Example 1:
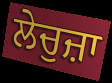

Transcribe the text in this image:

ਲੇਚੁਜ਼ਾ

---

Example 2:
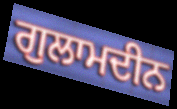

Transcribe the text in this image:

ਗੁਲਾਮਦੀਨ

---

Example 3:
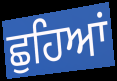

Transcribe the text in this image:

ਛੁਹਿਆਂ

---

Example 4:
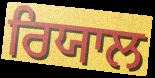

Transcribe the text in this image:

ਰਿਯਾਲ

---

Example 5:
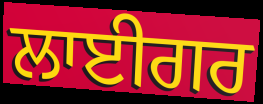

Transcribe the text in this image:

ਲਾਈਗਰ